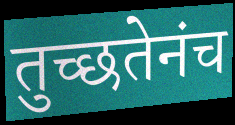
तुच्छतेनंच